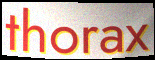
thorax